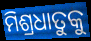
ମିଶ୍ରଧାତୁକୁ